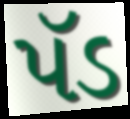
પૅડ